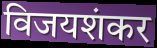
विजयशंकर